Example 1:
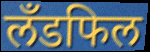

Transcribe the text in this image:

लँडफिल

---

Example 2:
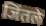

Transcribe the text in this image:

जिंतले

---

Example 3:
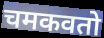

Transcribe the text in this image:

चमकवतो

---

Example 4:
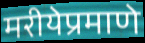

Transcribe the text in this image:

मरीयेप्रमाणे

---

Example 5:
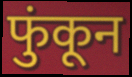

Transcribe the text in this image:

फुंकून